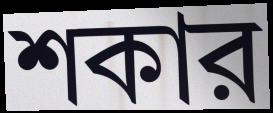
শকার